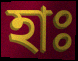
হাঃ